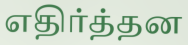
எதிர்த்தன